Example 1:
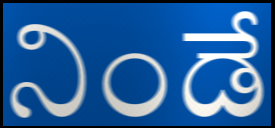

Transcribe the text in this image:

నిండే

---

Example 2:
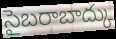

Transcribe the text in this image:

సైబరాబాద్కు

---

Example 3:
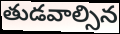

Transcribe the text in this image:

తుడవాల్సిన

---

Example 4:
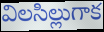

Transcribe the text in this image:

విలసిల్లుగాక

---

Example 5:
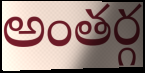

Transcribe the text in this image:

అంతర్గ